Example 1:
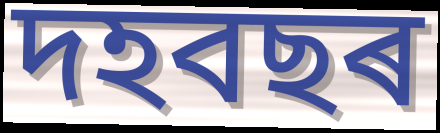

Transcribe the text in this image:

দহবছৰ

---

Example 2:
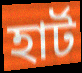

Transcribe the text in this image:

হাৰ্ট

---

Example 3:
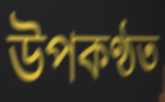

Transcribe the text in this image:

উপকণ্ঠত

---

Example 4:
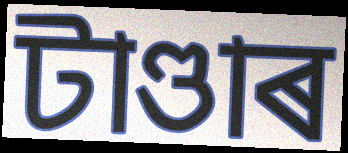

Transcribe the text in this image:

টাণ্ডাৰ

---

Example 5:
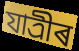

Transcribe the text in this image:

যাত্ৰীৰ